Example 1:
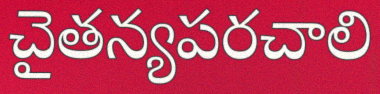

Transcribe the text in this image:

చైతన్యపరచాలి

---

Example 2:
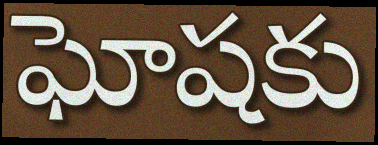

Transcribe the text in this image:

ఘోషకు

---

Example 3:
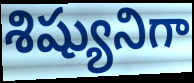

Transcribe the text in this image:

శిష్యునిగా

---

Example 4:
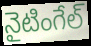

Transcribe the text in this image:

నైటింగేల్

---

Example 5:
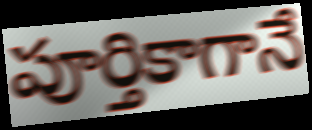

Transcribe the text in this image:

పూర్తికాగానే